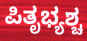
ಪಿತೃಭ್ಯಶ್ಚ